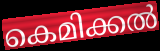
കെമിക്കൽ